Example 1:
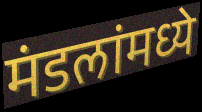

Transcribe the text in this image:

मंडलांमध्ये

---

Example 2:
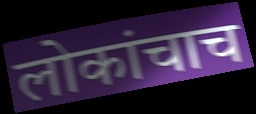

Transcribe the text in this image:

लोकांचाच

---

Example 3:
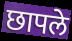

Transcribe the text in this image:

छापले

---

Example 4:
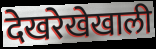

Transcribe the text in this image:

देखरेखेखाली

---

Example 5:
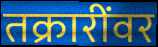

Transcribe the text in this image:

तक्रारींवर